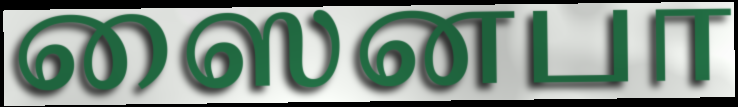
ஸைனபா